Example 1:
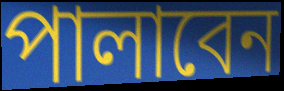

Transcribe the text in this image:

পালাবেন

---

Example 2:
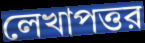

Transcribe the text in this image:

লেখাপত্তর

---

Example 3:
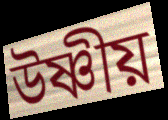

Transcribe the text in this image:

উষ্ণীয়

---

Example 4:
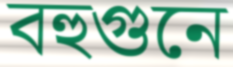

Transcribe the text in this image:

বহুগুনে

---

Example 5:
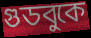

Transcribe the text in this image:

গুডবুকে